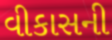
વીકાસની